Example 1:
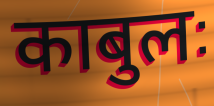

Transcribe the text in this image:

काबुलः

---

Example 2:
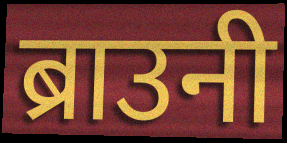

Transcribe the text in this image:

ब्राउनी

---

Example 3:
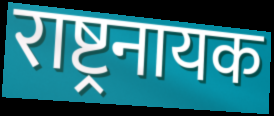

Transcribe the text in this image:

राष्ट्रनायक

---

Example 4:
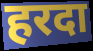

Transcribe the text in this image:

हरदा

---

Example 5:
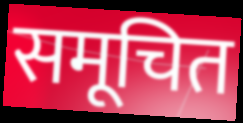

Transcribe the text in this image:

समूचित